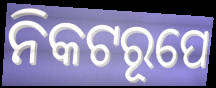
ନିକଟରୂପେ